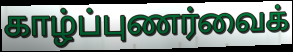
காழ்ப்புணர்வைக்